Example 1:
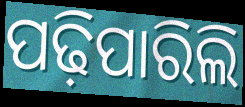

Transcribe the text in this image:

ପଢ଼ିପାରିଲି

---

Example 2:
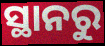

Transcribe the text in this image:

ସ୍ଥାନରୁ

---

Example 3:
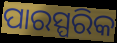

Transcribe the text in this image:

ପାରସ୍ପରିକ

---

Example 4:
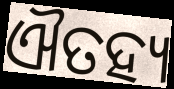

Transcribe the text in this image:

ଐତହ୍ୟ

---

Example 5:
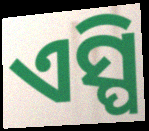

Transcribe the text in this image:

ଏସ୍ପି